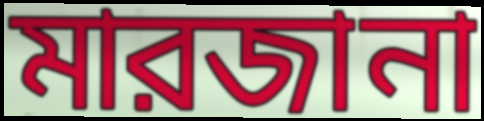
মারজানা